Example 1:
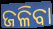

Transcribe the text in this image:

ଜଳିବା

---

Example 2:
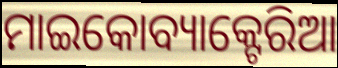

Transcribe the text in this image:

ମାଇକୋବ୍ୟାକ୍ଟେରିଆ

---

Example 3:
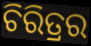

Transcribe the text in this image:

ଚିରିତ୍ରର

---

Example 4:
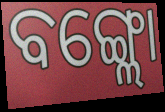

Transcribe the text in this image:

ବଙ୍ଗ୍ଲୋ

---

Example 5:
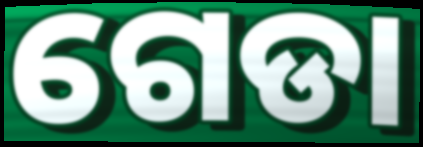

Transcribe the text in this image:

ଗେଡା